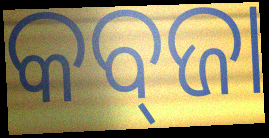
କବ୍‌ଜା